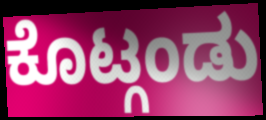
ಕೊಟ್ಗಂಡು